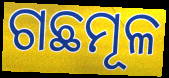
ଗଛମୂଳ